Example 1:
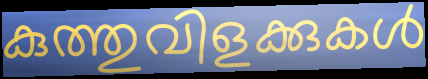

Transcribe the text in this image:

കുത്തുവിളക്കുകൾ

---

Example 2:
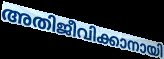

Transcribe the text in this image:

അതിജീവിക്കാനായി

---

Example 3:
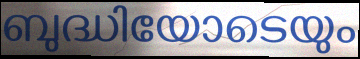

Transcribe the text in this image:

ബുദ്ധിയോടെയും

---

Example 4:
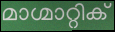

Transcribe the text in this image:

മാഗ്മാറ്റിക്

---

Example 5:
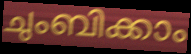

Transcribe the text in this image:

ചുംബിക്കാം